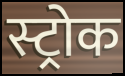
स्‍ट्रोक